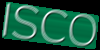
ISCO